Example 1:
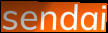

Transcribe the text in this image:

sendai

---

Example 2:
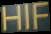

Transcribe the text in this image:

HIF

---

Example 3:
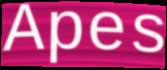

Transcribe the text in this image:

Apes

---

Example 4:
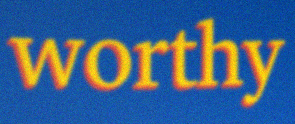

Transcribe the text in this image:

worthy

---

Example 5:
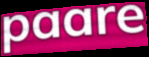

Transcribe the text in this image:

paare